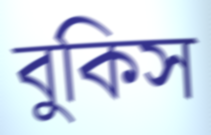
বুকিস